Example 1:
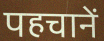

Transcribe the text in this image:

पहचानें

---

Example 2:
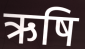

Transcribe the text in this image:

ऋषि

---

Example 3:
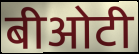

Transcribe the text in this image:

बीओटी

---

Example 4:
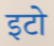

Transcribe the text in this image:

इटो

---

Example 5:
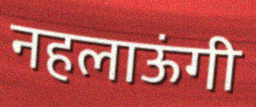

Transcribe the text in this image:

नहलाऊंगी